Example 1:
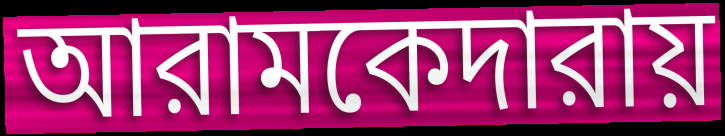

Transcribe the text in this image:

আরামকেদারায়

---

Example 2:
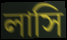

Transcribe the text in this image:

লাসি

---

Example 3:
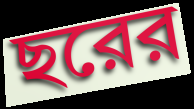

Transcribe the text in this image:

ছরের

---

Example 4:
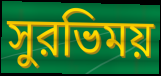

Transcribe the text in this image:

সুরভিময়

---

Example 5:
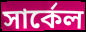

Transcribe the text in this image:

সার্কেল